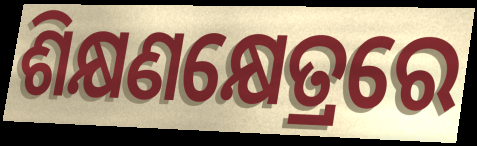
ଶିକ୍ଷଣକ୍ଷେତ୍ରରେ